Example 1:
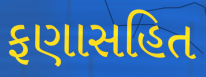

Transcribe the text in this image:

ફણાસહિત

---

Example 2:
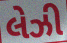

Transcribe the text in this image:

લેઝી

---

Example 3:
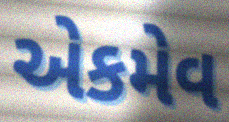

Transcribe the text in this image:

એકમેવ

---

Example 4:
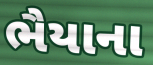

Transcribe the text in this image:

ભૈયાના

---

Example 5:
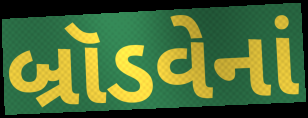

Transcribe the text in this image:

બ્રૉડવેનાં